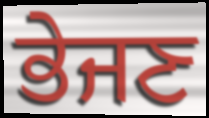
ਭੇਜਣ